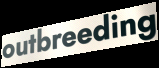
outbreeding